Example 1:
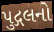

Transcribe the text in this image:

પુદ્ગલનો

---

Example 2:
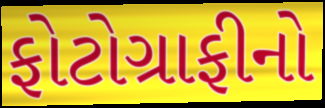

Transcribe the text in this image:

ફોટોગ્રાફીનો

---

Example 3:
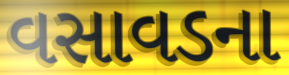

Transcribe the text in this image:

વસાવડના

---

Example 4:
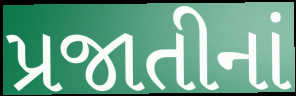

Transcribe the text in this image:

પ્રજાતીનાં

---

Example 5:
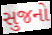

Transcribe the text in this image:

સુજનો